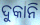
ଦୁକାନି